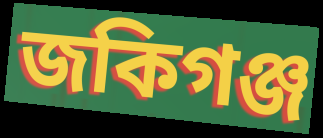
জকিগঞ্জ